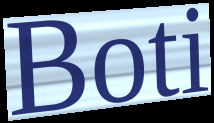
Boti